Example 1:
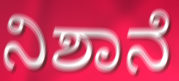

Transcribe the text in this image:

ನಿಶಾನೆ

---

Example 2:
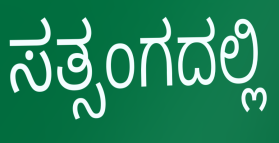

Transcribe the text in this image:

ಸತ್ಸಂಗದಲ್ಲಿ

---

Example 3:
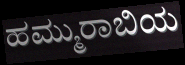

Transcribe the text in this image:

ಹಮ್ಮುರಾಬಿಯ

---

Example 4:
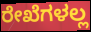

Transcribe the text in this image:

ರೇಖೆಗಳಲ್ಲ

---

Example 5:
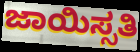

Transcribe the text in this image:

ಜಾಯಿಸ್ಸತಿ